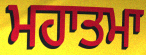
ਮਹਾਤਮਾ